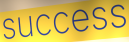
success